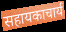
सहायकाचार्य